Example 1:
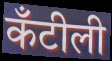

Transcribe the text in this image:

कँटीली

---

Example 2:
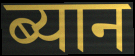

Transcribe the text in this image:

ब्यान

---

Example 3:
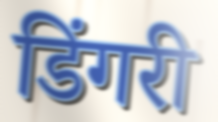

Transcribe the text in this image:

डिंगरी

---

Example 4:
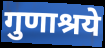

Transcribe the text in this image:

गुणाश्रये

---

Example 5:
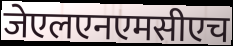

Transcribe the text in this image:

जेएलएनएमसीएच